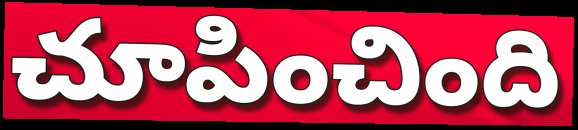
చూపించింది